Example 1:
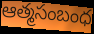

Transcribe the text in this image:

ఆత్మసంబంధ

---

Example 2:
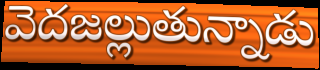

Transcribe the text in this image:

వెదజల్లుతున్నాడు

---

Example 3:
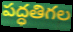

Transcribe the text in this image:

పద్ధతిగల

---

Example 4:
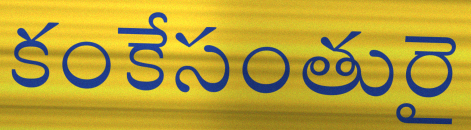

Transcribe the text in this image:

కంకేసంతురై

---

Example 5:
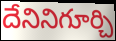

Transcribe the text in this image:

దేనినిగూర్చి